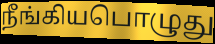
நீங்கியபொழுது